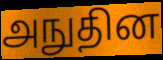
அநுதின